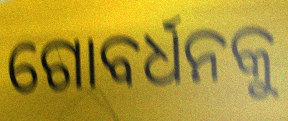
ଗୋବର୍ଧନକୁ